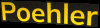
Poehler